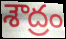
శౌద్రం